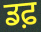
ਡਫ਼